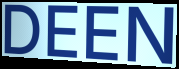
DEEN